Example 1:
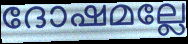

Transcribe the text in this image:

ദോഷമല്ലേ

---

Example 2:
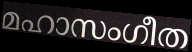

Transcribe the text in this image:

മഹാസംഗീത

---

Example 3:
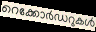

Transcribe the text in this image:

റെക്കോർഡറുകൾ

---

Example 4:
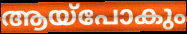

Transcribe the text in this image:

ആയ്പോകും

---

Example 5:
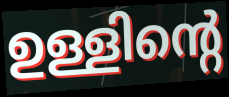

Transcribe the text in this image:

ഉള്ളിന്റെ